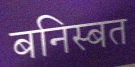
बनिस्बत